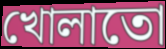
খোলাতো